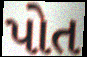
પોત